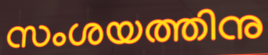
സംശയത്തിനു